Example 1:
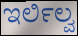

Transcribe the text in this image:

ಇರ್ಲಿಲ್ವ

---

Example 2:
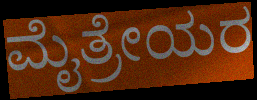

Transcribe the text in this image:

ಮೈತ್ರೇಯರ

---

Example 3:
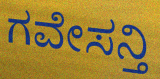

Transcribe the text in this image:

ಗವೇಸನ್ತಿ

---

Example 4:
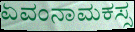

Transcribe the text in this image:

ಏವಂನಾಮಕಸ್ಸ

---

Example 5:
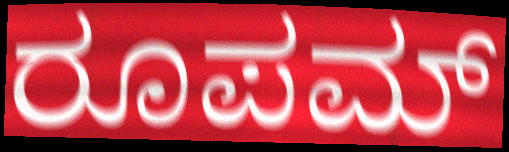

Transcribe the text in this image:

ರೂಪಮ್